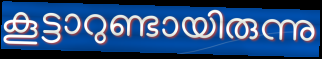
കൂട്ടാറുണ്ടായിരുന്നു